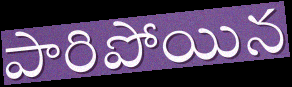
పారిపోయిన